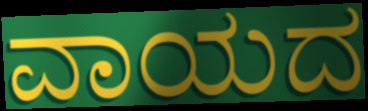
ವಾಯದ